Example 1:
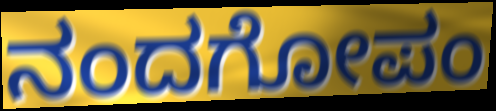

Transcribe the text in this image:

ನಂದಗೋಪಂ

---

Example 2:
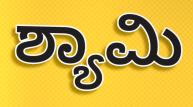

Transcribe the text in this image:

ಶ್ಯಾಮಿ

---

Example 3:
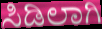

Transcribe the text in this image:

ಸಿಡಿಲಾಗಿ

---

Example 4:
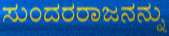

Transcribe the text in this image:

ಸುಂದರರಾಜನನ್ನು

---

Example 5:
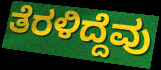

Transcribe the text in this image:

ತೆರಳಿದ್ದೆವು